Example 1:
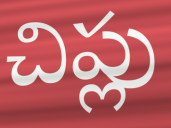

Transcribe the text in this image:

చిప్లు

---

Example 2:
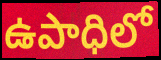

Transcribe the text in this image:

ఉపాధిలో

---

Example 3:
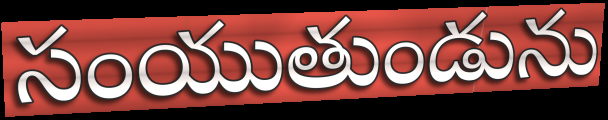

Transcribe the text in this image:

సంయుతుండును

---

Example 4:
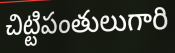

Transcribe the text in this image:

చిట్టిపంతులుగారి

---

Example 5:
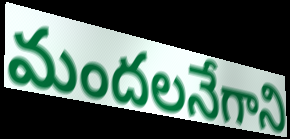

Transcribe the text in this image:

మందలనేగాని